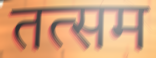
तत्सम